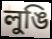
লুঙি